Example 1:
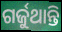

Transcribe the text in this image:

ଗର୍ଜୁଥାନ୍ତି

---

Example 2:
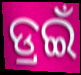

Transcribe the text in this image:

ଡ୍ରଇଁ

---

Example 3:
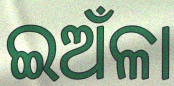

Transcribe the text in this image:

ଇଅଁଳା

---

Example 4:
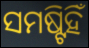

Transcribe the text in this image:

ସମଷ୍ଟିହିଁ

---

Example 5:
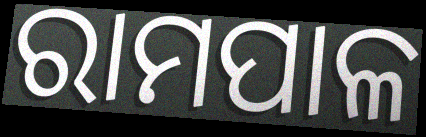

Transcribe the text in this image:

ରାମପାଳ